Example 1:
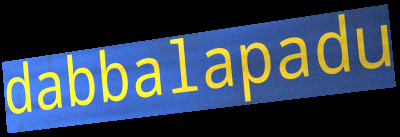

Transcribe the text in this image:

dabbalapadu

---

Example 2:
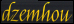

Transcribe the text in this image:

dzemhou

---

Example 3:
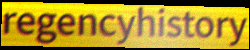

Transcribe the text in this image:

regencyhistory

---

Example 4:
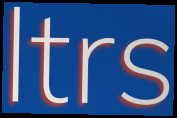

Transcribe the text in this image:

ltrs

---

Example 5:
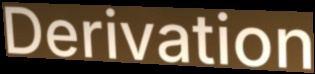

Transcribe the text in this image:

Derivation